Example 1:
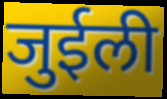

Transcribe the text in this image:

जुईली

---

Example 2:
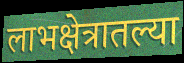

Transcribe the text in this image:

लाभक्षेत्रातल्या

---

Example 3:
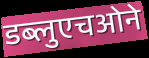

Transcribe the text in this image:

डब्लुएचओने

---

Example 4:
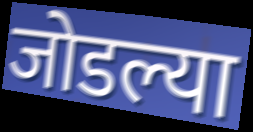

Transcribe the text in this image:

जोडल्या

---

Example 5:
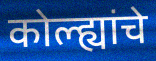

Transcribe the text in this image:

कोल्ह्यांचे